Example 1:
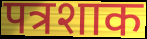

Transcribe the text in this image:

पत्रशाक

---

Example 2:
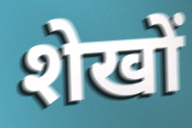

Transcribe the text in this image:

शेखों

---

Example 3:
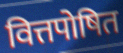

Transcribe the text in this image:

वित्तपोषित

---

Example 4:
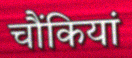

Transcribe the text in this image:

चौंकियां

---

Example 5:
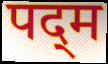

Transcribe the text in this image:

पद्‌म